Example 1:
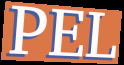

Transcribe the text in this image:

PEL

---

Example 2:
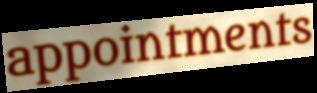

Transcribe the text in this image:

appointments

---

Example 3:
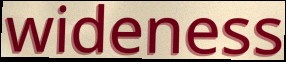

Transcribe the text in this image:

wideness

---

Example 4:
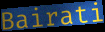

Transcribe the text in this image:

Bairati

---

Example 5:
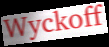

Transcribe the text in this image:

Wyckoff